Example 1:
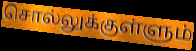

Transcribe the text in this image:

சொல்லுக்குள்ளும்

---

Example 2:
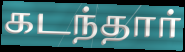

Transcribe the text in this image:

கடந்தார்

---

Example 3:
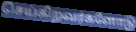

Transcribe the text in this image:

செய்கிறவர்களோடு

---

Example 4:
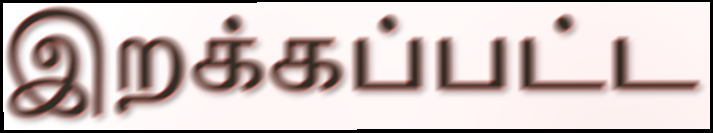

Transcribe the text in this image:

இறக்கப்பட்ட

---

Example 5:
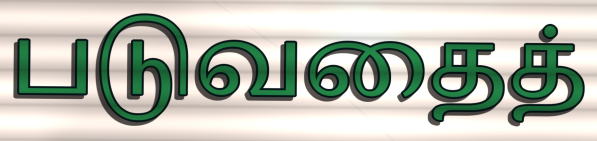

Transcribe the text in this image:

படுவதைத்